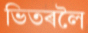
ভিতৰলৈ